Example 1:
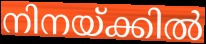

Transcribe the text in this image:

നിനയ്ക്കിൽ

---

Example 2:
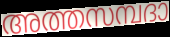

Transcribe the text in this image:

അത്തസമ്പദാ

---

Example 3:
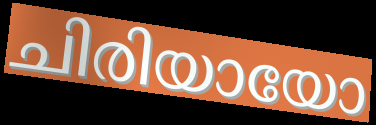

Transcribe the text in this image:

ചിരിയായോ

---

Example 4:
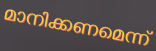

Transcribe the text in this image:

മാനിക്കണമെന്ന്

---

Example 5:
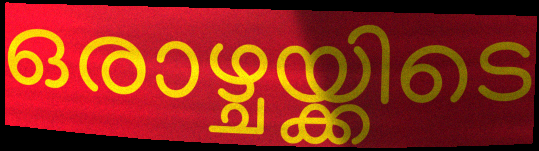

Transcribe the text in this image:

ഒരാഴ്ചയ്ക്കിടെ